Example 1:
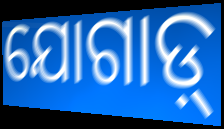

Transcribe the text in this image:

ଯୋଗାଡ଼୍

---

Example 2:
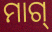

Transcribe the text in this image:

ମାଗ୍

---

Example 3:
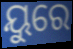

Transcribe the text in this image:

ୟୁରେ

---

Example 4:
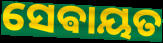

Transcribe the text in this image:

ସେଵାୟତ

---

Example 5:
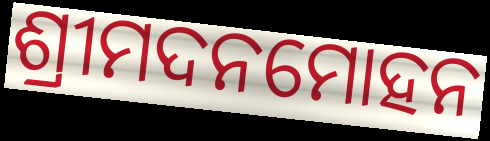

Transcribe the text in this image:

ଶ୍ରୀମଦନମୋହନ